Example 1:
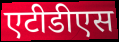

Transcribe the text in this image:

एटीडीएस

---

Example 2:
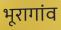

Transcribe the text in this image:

भूरागांव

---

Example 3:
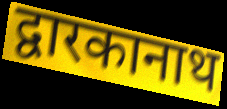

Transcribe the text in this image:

द्वारकानाथ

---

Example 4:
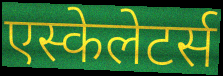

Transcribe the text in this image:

एस्केलेटर्स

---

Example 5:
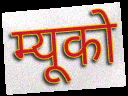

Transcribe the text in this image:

म्यूको